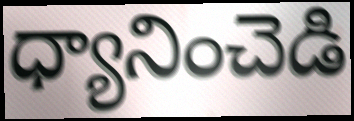
ధ్యానించెడి